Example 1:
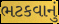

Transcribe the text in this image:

ભટકવાનું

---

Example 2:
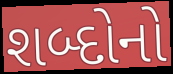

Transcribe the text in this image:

શબ્દોનો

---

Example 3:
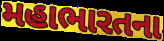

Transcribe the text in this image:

મહાભારતના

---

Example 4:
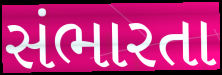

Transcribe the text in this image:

સંભારતા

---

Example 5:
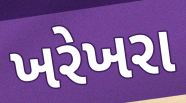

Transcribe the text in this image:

ખરેખરા